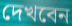
দেখবেন